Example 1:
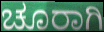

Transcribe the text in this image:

ಚೂರಾಗಿ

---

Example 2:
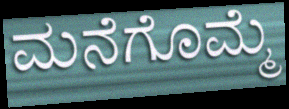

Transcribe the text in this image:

ಮನೆಗೊಮ್ಮೆ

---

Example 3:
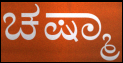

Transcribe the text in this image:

ಚಷ್ಮಾ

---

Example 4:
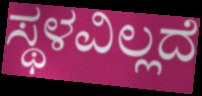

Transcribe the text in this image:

ಸ್ಥಳವಿಲ್ಲದೆ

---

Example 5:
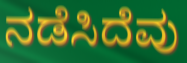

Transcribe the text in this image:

ನಡೆಸಿದೆವು